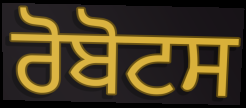
ਰੋਬੋਟਸ